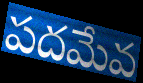
పదమేవ